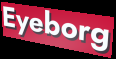
Eyeborg